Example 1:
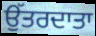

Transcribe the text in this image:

ਉੱਤਰਦਾਤਾ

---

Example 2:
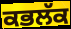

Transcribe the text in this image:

ਕਭਲੱਕ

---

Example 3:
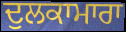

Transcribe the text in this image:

ਦੁਲਕਾਮਾਰਾ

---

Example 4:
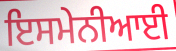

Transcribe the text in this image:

ਇਸਮੇਨੀਆਈ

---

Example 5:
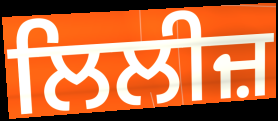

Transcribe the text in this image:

ਲਿਲੀਜ਼